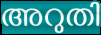
അറുതി